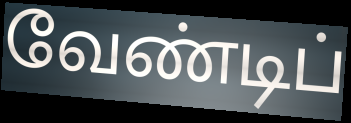
வேண்டிப்